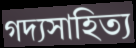
গদ্যসাহিত্য